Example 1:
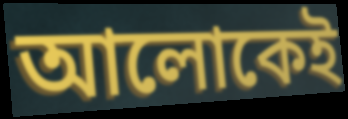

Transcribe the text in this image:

আলোকেই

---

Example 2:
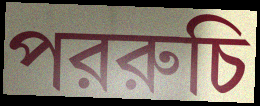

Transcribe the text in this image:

পররুচি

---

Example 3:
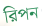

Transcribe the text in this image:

রিপন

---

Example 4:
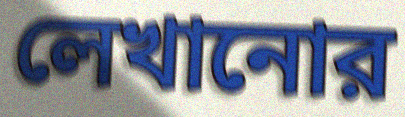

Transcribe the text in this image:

লেখানোর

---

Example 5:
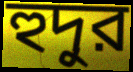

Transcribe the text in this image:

হুদুর